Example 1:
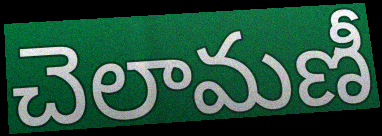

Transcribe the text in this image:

చెలామణీ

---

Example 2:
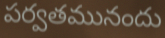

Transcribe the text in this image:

పర్వతమునందు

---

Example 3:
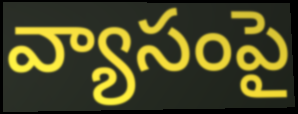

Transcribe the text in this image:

వ్యాసంపై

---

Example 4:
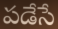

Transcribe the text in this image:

పడేసే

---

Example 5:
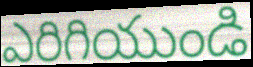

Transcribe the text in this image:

ఎరిగియుండి